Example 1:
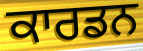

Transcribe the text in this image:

ਕਾਰਡਨ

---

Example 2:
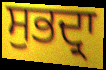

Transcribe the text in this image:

ਸੁਭਦ੍ਰਾ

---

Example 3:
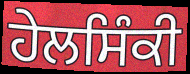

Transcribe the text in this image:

ਹੇਲਸਿੰਕੀ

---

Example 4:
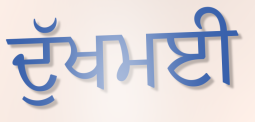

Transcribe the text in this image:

ਦੁੱਖਮਈ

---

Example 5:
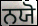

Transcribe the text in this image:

ਨਯੋ